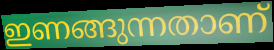
ഇണങ്ങുന്നതാണ്